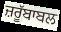
ਜ਼ਰੂੱਬਾਬਲ